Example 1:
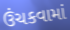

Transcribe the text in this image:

ઉંચકવામાં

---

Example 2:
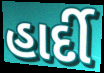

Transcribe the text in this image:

હાર્દી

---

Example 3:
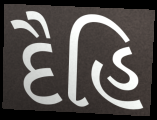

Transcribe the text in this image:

દૈહિ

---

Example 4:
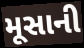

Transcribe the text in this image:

મૂસાની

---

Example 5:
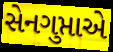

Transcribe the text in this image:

સેનગુપ્તાએ